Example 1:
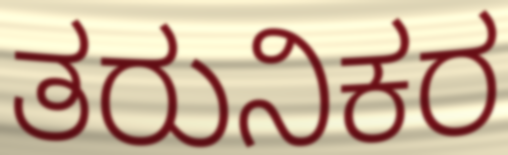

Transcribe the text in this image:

ತರುನಿಕರ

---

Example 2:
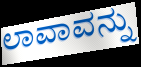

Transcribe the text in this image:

ಲಾವಾವನ್ನು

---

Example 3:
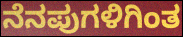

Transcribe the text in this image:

ನೆನಪುಗಳಿಗಿಂತ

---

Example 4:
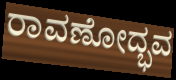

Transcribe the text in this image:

ರಾವಣೋದ್ಭವ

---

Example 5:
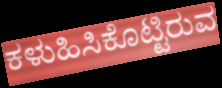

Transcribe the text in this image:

ಕಳುಹಿಸಿಕೊಟ್ಟಿರುವ